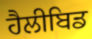
ਹੈਲੀਬਿਡ